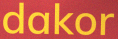
dakor